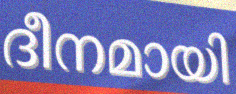
ദീനമായി